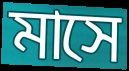
মাসে